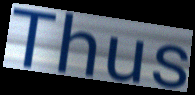
Thus